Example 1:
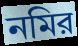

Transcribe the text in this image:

নমির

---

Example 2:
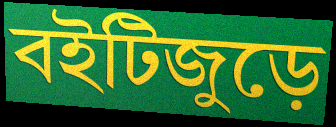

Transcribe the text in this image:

বইটিজুড়ে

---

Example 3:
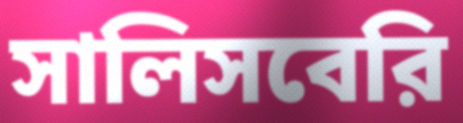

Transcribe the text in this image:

সালিসবেরি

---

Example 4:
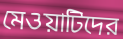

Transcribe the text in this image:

মেওয়াটিদের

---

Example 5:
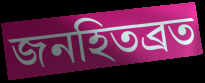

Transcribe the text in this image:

জনহিতব্রত